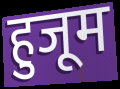
हुजूम